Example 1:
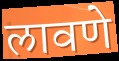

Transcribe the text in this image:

लावणे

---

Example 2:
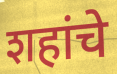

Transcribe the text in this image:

शहांचे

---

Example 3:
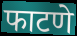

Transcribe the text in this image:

फाटणे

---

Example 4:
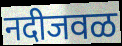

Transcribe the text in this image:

नदीजवळ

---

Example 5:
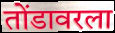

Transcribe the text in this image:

तोंडावरला